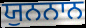
ਯੁਨਨਾਨ